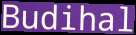
Budihal